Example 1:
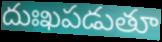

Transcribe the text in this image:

దుఃఖపడుతూ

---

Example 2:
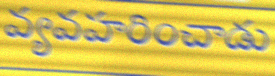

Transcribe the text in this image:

వ్యవహరించాడు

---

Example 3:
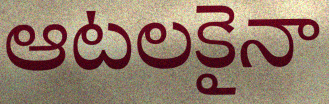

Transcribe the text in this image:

ఆటలకైనా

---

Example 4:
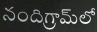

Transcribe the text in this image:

నందిగ్రామ్‌లో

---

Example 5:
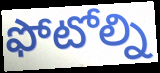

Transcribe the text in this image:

ఫోటోల్ని